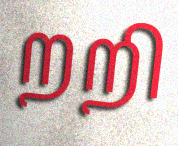
றறி